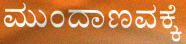
ಮುಂದಾಣವಕ್ಕೆ